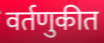
वर्तणुकीत